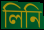
লিনি